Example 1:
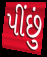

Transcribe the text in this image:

પીંછું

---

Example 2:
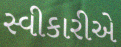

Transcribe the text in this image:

સ્વીકારીએ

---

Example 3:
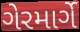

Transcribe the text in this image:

ગેરમાર્ગે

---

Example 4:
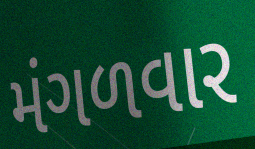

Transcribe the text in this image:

મંગળવાર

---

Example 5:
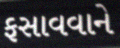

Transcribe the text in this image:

ફસાવવાને